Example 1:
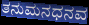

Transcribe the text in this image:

ತನುಮನಧನವ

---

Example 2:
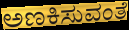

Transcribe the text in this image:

ಅಣಕಿಸುವಂತೆ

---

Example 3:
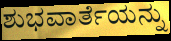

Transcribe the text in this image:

ಶುಭವಾರ್ತೆಯನ್ನು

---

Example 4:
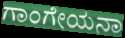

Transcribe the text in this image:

ಗಾಂಗೇಯನಾ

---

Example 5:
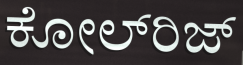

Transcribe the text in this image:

ಕೋಲ್‍ರಿಜ್